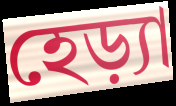
হেড়্যা